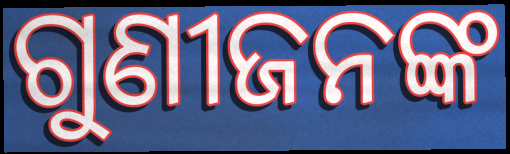
ଗୁଣୀଜନଙ୍କ